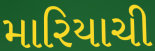
મારિયાચી